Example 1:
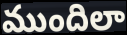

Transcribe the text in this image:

ముందిలా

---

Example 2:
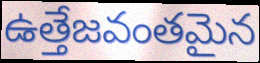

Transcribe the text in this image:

ఉత్తేజవంతమైన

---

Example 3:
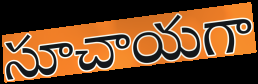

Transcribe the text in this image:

సూచాయగా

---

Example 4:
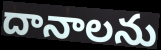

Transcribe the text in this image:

దానాలను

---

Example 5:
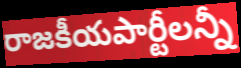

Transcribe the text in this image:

రాజకీయపార్టీలన్నీ